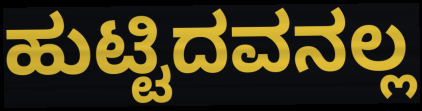
ಹುಟ್ಟಿದವನಲ್ಲ